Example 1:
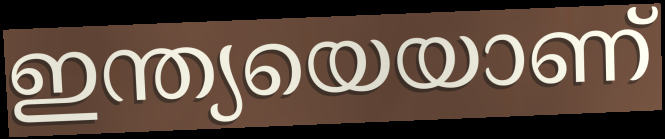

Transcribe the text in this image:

ഇന്ത്യയെയാണ്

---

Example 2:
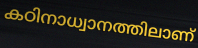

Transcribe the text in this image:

കഠിനാധ്വാനത്തിലാണ്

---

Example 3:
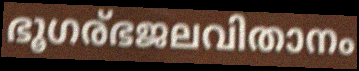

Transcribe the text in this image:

ഭൂഗര്ഭജലവിതാനം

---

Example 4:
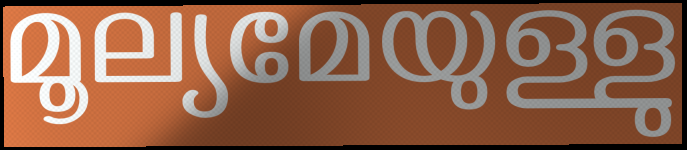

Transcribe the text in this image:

മൂല്യമേയുള്ളു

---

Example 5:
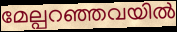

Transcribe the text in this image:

മേല്പറഞ്ഞവയിൽ